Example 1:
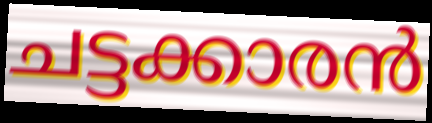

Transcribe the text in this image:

ചട്ടക്കാരൻ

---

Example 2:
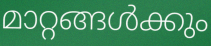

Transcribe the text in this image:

മാറ്റങ്ങൾക്കും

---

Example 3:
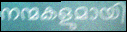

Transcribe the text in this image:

നന്മകളുമായി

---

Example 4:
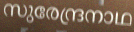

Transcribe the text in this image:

സുരേന്ദ്രനാഥ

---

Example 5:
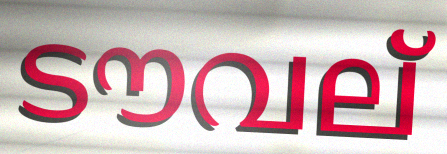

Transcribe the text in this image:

ടൗവല്